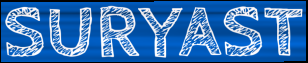
SURYAST